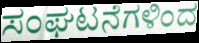
ಸಂಘಟನೆಗಳಿಂದ